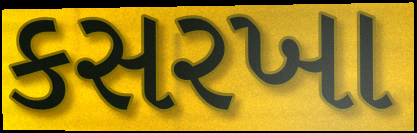
કસરખા